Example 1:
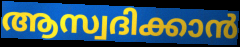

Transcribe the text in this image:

ആസ്വദിക്കാൻ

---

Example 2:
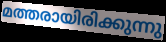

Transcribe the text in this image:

മത്തരായിരിക്കുന്നു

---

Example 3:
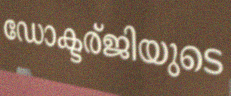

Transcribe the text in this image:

ഡോക്ടര്ജിയുടെ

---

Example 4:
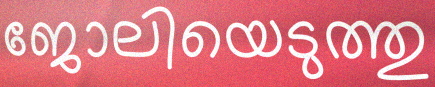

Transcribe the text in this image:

ജോലിയെടുത്തു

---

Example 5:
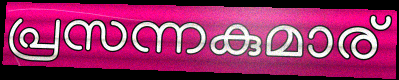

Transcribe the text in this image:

പ്രസന്നകുമാര്